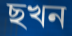
ছখন